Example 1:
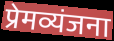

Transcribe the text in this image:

प्रेमव्यंजना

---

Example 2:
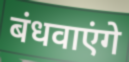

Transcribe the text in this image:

बंधवाएंगे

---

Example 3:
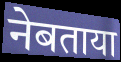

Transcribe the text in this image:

नेबताया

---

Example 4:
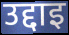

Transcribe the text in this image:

उद्दाइ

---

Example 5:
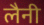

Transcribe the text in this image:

लैनी